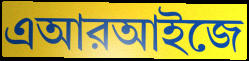
এআরআইজে